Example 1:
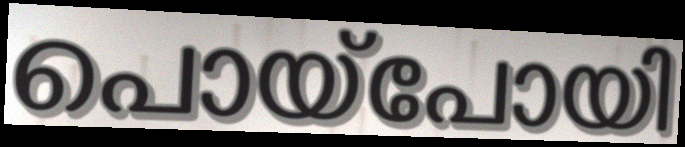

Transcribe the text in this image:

പൊയ്പോയി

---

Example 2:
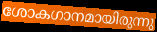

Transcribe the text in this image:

ശോകഗാനമായിരുന്നു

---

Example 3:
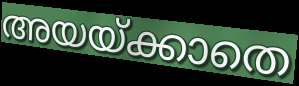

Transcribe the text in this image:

അയയ്ക്കാതെ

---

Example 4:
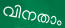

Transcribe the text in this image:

വിനതാം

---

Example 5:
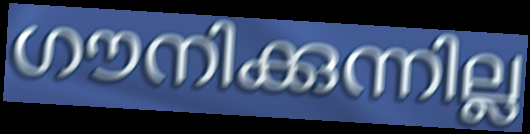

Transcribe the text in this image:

ഗൗനിക്കുന്നില്ല